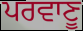
ਪਰਵਾਣੂ